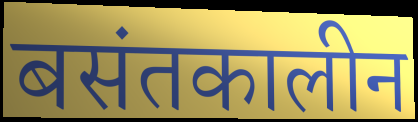
बसंतकालीन